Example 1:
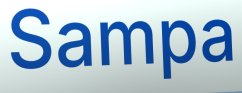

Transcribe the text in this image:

Sampa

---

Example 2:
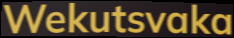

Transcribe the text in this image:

Wekutsvaka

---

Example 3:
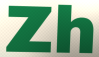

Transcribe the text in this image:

Zh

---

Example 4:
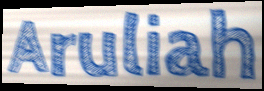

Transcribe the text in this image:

Aruliah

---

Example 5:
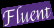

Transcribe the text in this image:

Fluent